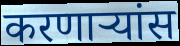
करणाऱ्यांस